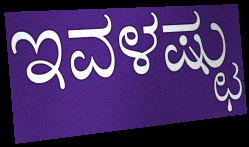
ಇವಳಷ್ಟು